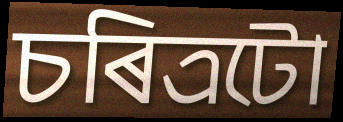
চৰিত্ৰটো